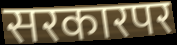
सरकारपर